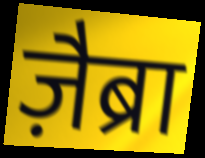
ज़ैब्रा